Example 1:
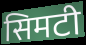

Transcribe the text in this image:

सिमटी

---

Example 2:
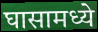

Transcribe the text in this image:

घासामध्ये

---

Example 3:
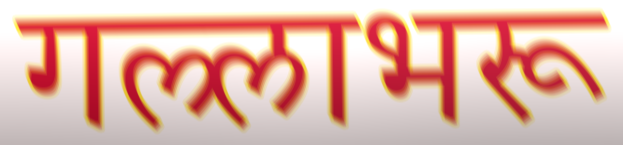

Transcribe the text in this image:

गल्लाभरू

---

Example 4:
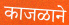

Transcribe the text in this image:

काजळाने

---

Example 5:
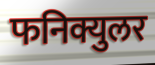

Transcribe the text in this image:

फनिक्युलर